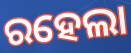
ରହେଲା